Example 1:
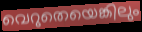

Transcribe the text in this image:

വെറുതെയെങ്കിലും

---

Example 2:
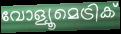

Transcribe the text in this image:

വോള്യൂമെട്രിക്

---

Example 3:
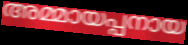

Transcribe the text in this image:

അമ്മായപ്പനായ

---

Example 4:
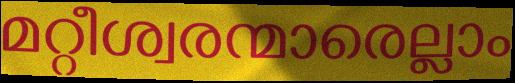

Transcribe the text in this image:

മറ്റീശ്വരന്മാരെല്ലാം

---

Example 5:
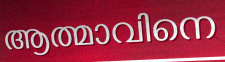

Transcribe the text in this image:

ആത്മാവിനെ